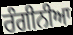
ਰੰਗੀਨੀਆ